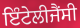
ਇੰਟੇਲੀਜੈਂਸੀ